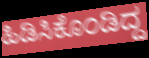
ಹಿಡಿಸಿಕೊಂಡಿದ್ದ